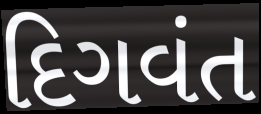
દિગવંત